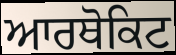
ਆਰਥੋਕਿਟ